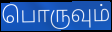
பொருவும்